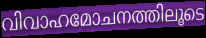
വിവാഹമോചനത്തിലൂടെ